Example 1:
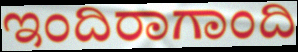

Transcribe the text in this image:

ಇಂದಿರಾಗಾಂದಿ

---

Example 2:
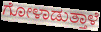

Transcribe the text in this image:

ಗೋಳಾಡುತ್ತಾಳೆ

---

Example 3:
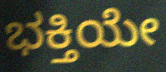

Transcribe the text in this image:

ಭಕ್ತಿಯೇ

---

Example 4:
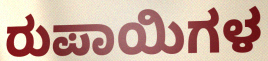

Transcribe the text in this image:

ರುಪಾಯಿಗಳ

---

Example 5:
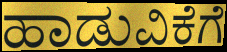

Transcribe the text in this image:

ಹಾಡುವಿಕೆಗೆ